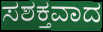
ಸಶಕ್ತವಾದ